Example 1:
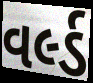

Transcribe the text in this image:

વર્લ્ડ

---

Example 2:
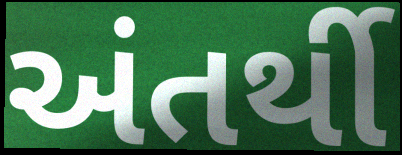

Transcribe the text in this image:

અંતર્થી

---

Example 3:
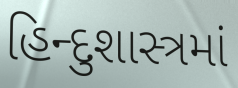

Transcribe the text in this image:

હિન્દુશાસ્ત્રમાં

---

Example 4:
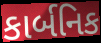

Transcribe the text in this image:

કાર્બનિક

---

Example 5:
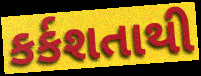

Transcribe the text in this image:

કર્કશતાથી